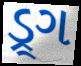
ડ્ર્ગ